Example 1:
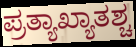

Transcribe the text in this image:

ಪ್ರತ್ಯಾಖ್ಯಾತಶ್ಚ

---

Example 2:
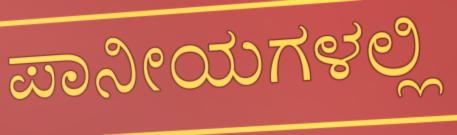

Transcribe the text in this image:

ಪಾನೀಯಗಳಲ್ಲಿ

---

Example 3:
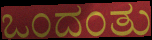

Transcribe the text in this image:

ಒಂದಂತು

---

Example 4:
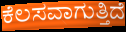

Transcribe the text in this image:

ಕೆಲಸವಾಗುತ್ತಿದೆ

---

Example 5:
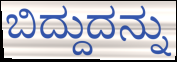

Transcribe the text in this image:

ಬಿದ್ದುದನ್ನು